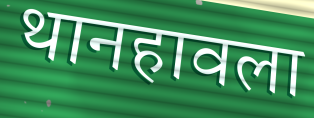
थानहावला